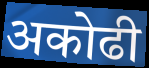
अकोढी